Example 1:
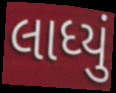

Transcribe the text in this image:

લાધ્યું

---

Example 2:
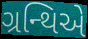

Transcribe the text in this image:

ગ્રન્થિએ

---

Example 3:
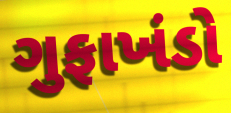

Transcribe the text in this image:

ગુફાખંડો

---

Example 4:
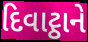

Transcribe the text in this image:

દિવાટ્ઠાને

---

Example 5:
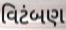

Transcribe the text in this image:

વિટંબણ